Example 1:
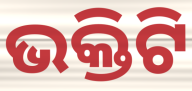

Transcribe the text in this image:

ଭକ୍ତିଟି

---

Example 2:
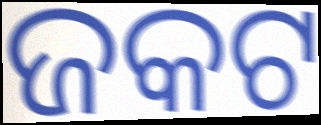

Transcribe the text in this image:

ଜକଟ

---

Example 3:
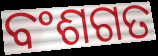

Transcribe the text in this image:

ବଂଶଗତ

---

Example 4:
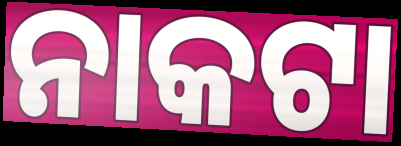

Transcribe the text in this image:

ନାକଟା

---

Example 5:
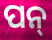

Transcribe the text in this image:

ପନ୍